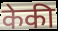
केकी